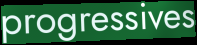
progressives